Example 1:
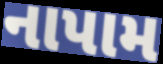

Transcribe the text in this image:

નાપામ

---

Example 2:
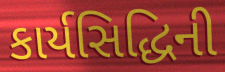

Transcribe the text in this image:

કાર્યસિદ્ધિની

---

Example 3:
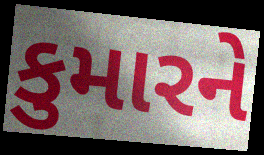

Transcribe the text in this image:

કુમારને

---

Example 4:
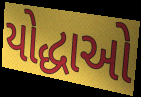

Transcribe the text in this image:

યોદ્ધાઓ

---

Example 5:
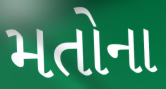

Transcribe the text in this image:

મતોના